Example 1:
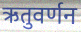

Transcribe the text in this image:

ऋतुवर्णन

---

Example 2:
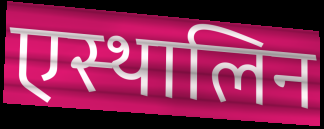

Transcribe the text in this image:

एस्थालिन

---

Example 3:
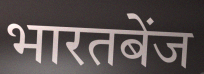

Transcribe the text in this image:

भारतबेंज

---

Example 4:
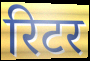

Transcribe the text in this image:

रिटर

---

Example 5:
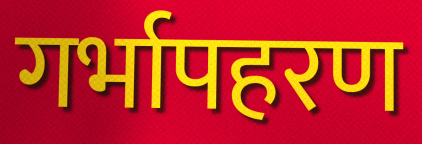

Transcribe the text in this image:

गर्भापहरण